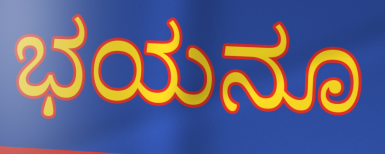
ಭಯನೂ